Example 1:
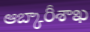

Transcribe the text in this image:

ఆబ్కారీశాఖ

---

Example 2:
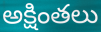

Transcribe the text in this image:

అక్షింతలు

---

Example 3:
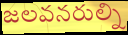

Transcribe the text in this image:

జలవనరుల్ని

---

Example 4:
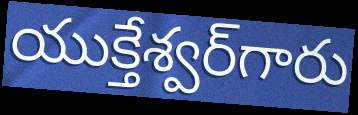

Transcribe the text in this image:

యుక్తేశ్వర్‌గారు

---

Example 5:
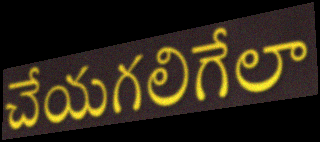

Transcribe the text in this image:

చేయగలిగేలా